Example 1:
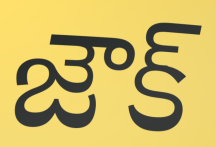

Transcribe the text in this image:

జౌక్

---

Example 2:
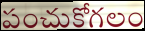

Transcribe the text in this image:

పంచుకోగలం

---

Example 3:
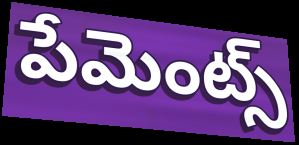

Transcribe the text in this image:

పేమెంట్స్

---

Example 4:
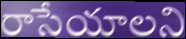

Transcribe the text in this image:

రాసేయాలని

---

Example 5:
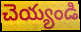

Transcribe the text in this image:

చెయ్యండి